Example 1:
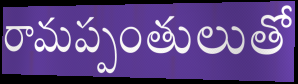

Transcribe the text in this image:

రామప్పంతులుతో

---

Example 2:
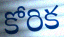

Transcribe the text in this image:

కోరిక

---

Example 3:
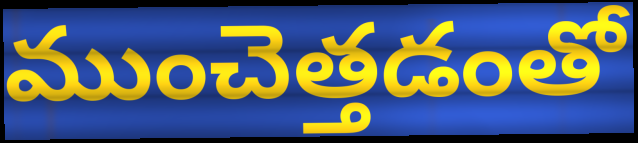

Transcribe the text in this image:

ముంచెత్తడంతో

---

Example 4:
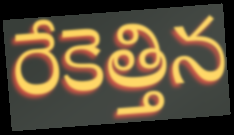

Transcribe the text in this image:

రేకెత్తిన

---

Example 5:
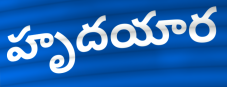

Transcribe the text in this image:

హృదయార